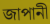
জাপানী